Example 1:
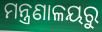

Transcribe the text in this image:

ମନ୍ତ୍ରଣାଳୟରୁ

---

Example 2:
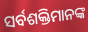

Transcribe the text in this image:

ସର୍ବଶକ୍ତିମାନଙ୍କ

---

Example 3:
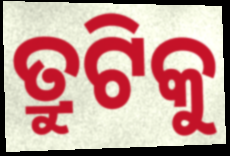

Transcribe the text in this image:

ତ୍ରୁଟିକୁ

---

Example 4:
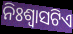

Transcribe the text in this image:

ନିଃଶ୍ୱାସଟିଏ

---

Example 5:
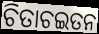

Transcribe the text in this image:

ଚିତାଚଇତନ